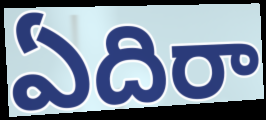
ఏదిరా